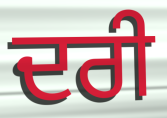
ਦਰੀ